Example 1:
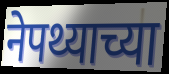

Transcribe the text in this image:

नेपथ्याच्या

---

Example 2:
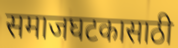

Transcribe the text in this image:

समाजघटकासाठी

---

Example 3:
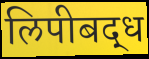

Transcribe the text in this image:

लिपीबद्ध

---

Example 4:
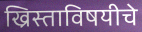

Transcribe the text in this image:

ख्रिस्ताविषयीचे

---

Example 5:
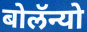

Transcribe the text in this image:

बोलॅन्यो